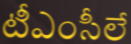
టీఎంసీలే